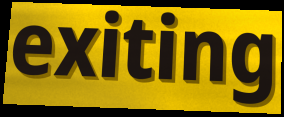
exiting